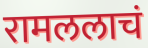
रामललाचं